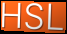
HSL